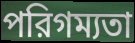
পরিগম্যতা